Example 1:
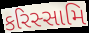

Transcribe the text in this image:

કરિસ્સામિ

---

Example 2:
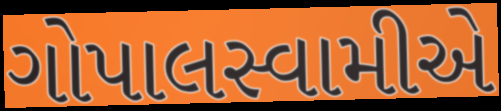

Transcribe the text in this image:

ગોપાલસ્વામીએ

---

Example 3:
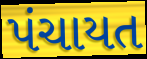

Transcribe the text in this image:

પંચાયત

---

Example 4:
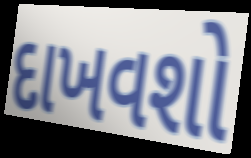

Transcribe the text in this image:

દાખવશો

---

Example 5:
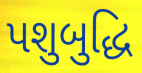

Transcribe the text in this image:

પશુબુદ્ધિ